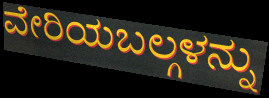
ವೇರಿಯಬಲ್ಗಳನ್ನು